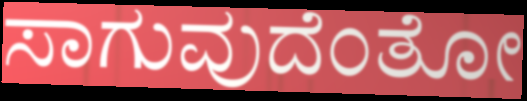
ಸಾಗುವುದೆಂತೋ